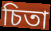
চিতা